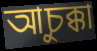
আচুক্কা